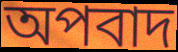
অপবাদ